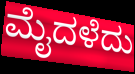
ಮೈದಳೆದು